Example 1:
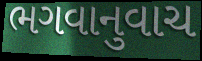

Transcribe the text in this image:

ભગવાનુવાચ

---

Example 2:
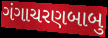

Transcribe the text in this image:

ગંગાચરણબાબુ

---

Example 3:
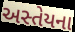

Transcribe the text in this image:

અસ્તેયના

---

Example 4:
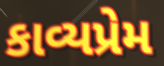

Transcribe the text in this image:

કાવ્યપ્રેમ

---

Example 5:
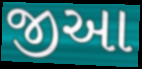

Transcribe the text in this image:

જીઆ